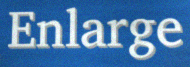
Enlarge